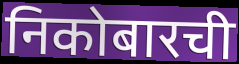
निकोबारची